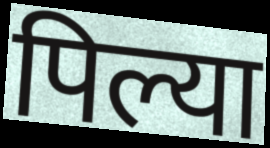
पिल्या